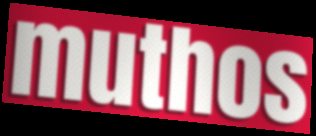
muthos